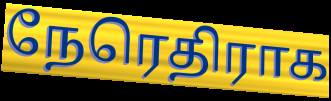
நேரெதிராக